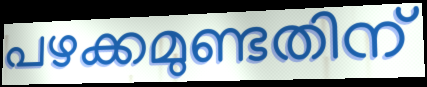
പഴക്കമുണ്ടതിന്